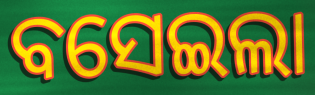
ବସେଇଲା